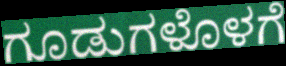
ಗೂಡುಗಳೊಳಗೆ